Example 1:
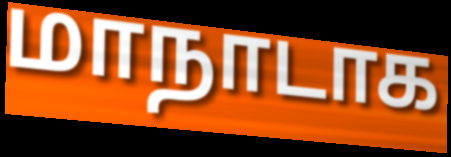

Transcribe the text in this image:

மாநாடாக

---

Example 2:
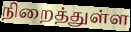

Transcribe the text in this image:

நிறைத்துள்ள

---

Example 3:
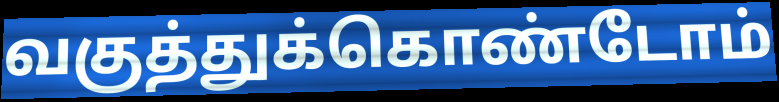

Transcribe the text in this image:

வகுத்துக்கொண்டோம்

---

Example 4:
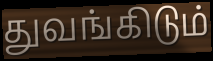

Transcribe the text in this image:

துவங்கிடும்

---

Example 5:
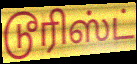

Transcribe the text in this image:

டூரிஸ்ட்